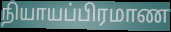
நியாயப்பிரமாண